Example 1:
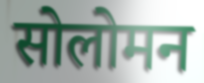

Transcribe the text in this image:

सोलोमन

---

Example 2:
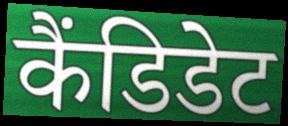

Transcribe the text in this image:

कैंडिडेट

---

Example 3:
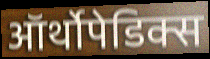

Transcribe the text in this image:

ऑर्थोपेडिक्स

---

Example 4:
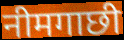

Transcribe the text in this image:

नीमगाछी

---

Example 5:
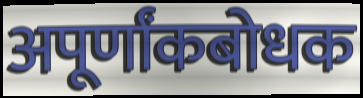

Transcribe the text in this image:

अपूर्णांकबोधक